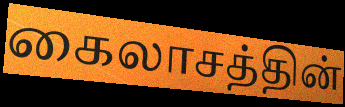
கைலாசத்தின்